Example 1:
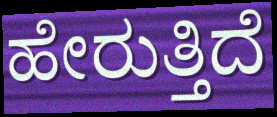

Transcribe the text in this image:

ಹೇರುತ್ತಿದೆ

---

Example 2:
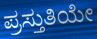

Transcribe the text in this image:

ಪ್ರಸ್ತುತಿಯೇ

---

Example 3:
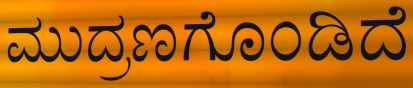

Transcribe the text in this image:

ಮುದ್ರಣಗೊಂಡಿದೆ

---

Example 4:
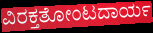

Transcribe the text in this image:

ವಿರಕ್ತತೋಂಟದಾರ್ಯ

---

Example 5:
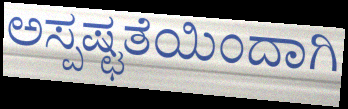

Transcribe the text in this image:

ಅಸ್ಪಷ್ಟತೆಯಿಂದಾಗಿ